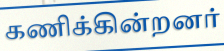
கணிக்கின்றனர்